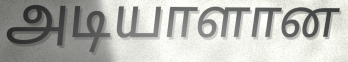
அடியாளான